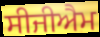
ਸੀਜੀਐਮ